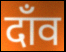
दाँव